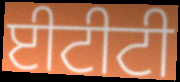
ਈਟੀਟੀ